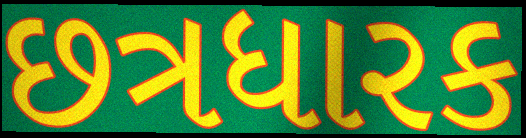
છત્રધારક